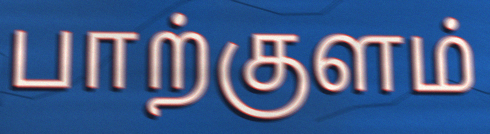
பாற்குளம்